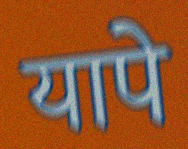
यापे